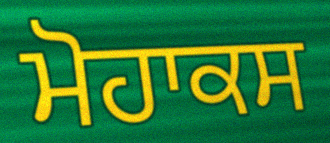
ਮੋਹਾਕਸ